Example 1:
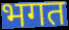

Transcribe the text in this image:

भगत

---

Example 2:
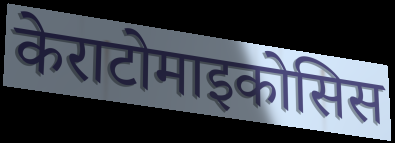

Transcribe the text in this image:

केराटोमाइकोसिस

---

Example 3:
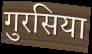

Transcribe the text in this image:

गुरसिया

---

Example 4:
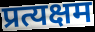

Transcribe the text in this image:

प्रत्यक्षम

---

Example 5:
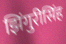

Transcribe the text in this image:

झिंगुरीसिंह